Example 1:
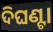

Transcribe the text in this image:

ଦିଘଣ୍ଟା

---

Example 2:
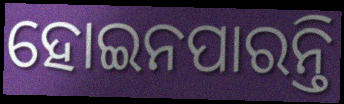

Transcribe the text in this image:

ହୋଇନପାରନ୍ତି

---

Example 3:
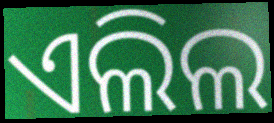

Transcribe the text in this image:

ଏଲିଲ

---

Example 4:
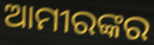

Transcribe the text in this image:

ଆମୀରଙ୍କର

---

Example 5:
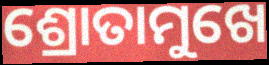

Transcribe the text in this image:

ଶ୍ରୋତାମୁଖେ